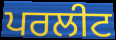
ਪਰਲੀਟ